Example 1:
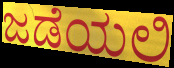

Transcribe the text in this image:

ಜಡೆಯಲಿ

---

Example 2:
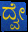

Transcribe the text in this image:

ದ್ವೇ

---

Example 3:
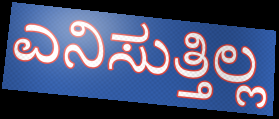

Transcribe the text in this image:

ಎನಿಸುತ್ತಿಲ್ಲ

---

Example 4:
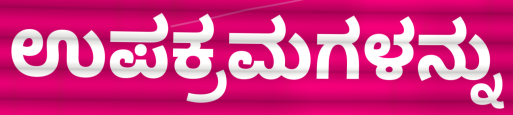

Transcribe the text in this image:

ಉಪಕ್ರಮಗಳನ್ನು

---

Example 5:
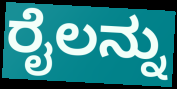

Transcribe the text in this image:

ರೈಲನ್ನು